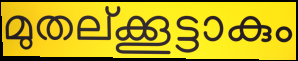
മുതല്ക്കൂട്ടാകും